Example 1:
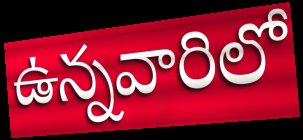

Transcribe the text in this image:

ఉన్నవారిలో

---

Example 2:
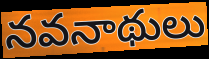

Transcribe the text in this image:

నవనాథులు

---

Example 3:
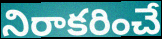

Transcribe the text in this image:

నిరాకరించే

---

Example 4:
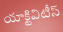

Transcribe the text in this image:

యాక్టివిటీస్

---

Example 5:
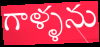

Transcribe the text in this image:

గాళ్ళను